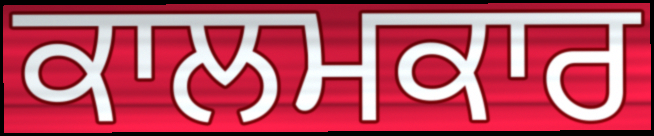
ਕਾਲਮਕਾਰ